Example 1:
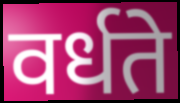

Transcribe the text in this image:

वर्धते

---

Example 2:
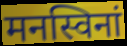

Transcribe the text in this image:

मनस्विनां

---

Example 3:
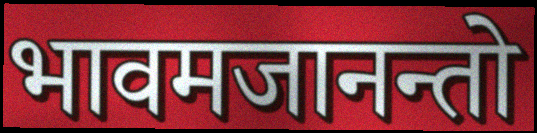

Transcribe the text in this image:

भावमजानन्तो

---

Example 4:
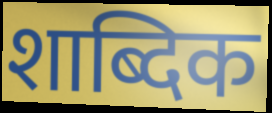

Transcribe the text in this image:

शाब्दिक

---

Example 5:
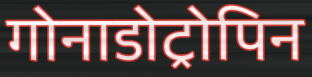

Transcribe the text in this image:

गोनाडोट्रोपिन